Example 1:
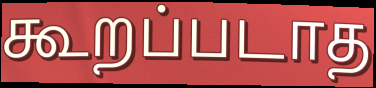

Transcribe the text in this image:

கூறப்படாத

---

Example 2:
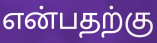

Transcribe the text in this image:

என்பதற்கு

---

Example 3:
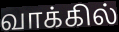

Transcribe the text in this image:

வாக்கில்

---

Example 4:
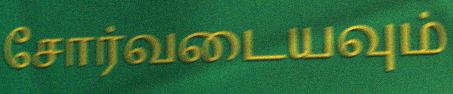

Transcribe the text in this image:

சோர்வடையவும்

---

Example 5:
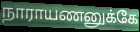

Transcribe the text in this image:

நாராயணனுக்கே